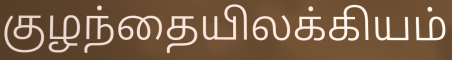
குழந்தையிலக்கியம்